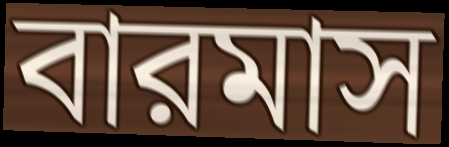
বারমাস